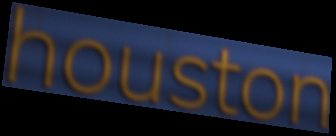
houston